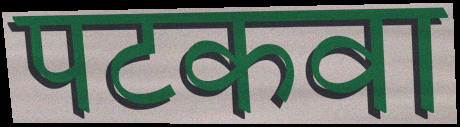
पटकवा